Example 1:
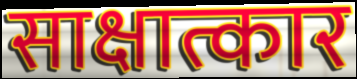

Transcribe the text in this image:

साक्षात्कार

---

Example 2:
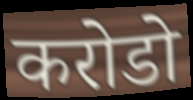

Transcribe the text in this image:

करोडो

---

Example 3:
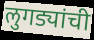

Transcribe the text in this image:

लुगड्यांची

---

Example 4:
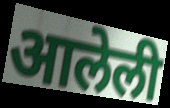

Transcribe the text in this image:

आलेली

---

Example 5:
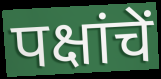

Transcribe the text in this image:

पक्षांचें